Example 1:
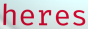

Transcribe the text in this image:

heres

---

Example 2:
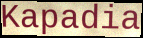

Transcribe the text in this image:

Kapadia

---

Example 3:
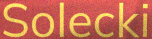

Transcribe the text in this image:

Solecki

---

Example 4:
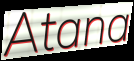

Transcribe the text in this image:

Atana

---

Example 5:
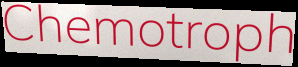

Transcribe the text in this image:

Chemotroph